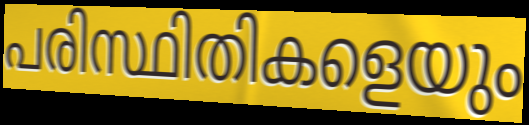
പരിസ്ഥിതികളെയും